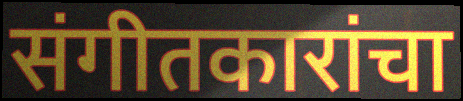
संगीतकारांचा